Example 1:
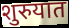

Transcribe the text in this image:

शुरुयात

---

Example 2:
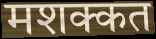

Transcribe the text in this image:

मशक्‍कत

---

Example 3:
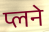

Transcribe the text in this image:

प्लने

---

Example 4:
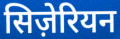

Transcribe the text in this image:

सिज़ेरियन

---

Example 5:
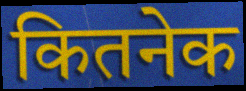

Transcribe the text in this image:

कितनेक